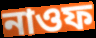
নাওফ